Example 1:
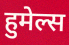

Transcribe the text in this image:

हुमेल्स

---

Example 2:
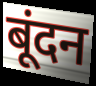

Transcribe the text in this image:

बूंदन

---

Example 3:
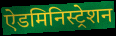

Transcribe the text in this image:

ऐडमिनिस्ट्रेशन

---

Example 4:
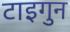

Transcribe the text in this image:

टाइगुन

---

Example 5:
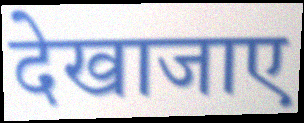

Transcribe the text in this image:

देखाजाए